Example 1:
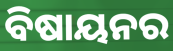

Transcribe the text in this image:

ବିଷାୟନର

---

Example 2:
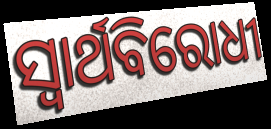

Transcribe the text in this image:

ସ୍ବାର୍ଥବିରୋଧୀ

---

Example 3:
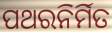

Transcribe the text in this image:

ପଥରନିର୍ମିତ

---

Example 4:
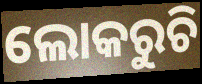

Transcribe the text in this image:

ଲୋକରୁଚି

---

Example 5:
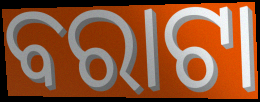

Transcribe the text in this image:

ବରାଟା